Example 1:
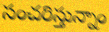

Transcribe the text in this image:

సంచరిస్తున్నాం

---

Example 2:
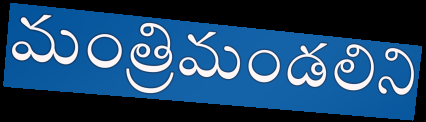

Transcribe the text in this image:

మంత్రిమండలిని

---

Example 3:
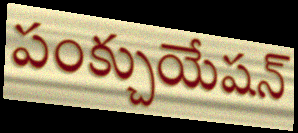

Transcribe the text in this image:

పంక్చుయేషన్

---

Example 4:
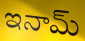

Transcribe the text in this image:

ఇనామ్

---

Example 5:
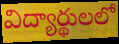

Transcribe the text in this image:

విద్యార్థులలో